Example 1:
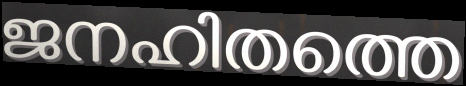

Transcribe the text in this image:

ജനഹിതത്തെ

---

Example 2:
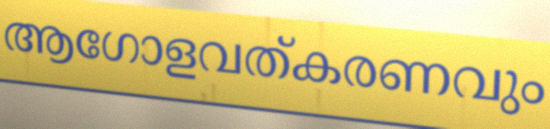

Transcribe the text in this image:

ആഗോളവത്കരണവും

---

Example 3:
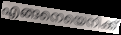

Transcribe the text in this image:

എങ്ങനെയെനിക്ക്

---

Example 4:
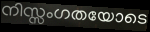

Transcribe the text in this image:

നിസ്സംഗതയോടെ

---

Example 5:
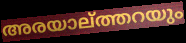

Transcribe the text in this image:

അരയാല്ത്തറയും